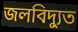
জলবিদ্যুত